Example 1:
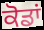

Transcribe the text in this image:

ਕੋਡਾਂ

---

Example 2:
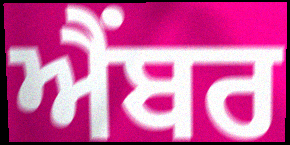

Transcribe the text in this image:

ਐਂਬਰ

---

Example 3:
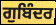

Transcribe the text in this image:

ਗੁਬਿੰਦਰ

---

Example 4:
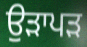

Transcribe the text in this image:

ਉੜਾਪੜ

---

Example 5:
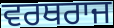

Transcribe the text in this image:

ਵਰਥਰਾਜ